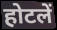
होटलें